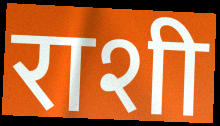
राशी